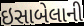
ઇસાબેલાની